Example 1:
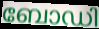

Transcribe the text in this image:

ബോഡി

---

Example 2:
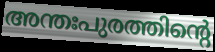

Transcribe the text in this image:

അന്തഃപുരത്തിന്റെ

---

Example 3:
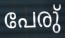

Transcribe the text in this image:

പേരു്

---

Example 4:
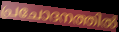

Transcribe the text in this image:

പ്രചോദനത്തിൽ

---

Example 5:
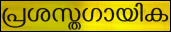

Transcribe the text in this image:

പ്രശസ്തഗായിക